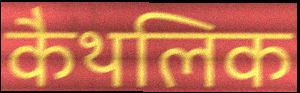
कैथलिक